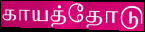
காயத்தோடு